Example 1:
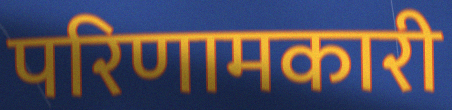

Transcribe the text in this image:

परिणामकारी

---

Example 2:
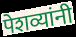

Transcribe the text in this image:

पेशव्यांनी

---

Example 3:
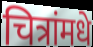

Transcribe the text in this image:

चित्रांमधे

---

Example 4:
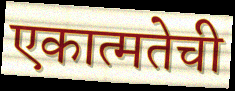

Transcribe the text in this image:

एकात्मतेची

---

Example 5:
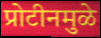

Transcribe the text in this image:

प्रोटीनमुळे